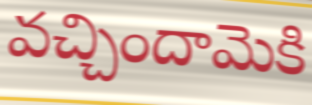
వచ్చిందామెకి